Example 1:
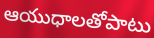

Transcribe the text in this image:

ఆయుధాలతోపాటు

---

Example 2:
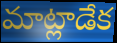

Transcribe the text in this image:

మాట్లాడేక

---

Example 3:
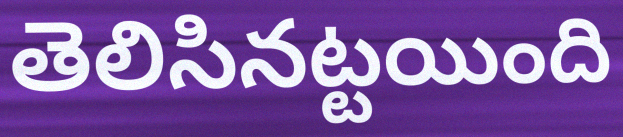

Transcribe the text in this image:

తెలిసినట్టయింది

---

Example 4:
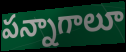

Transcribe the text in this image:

పన్నాగాలూ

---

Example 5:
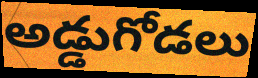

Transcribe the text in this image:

అడ్డుగోడలు